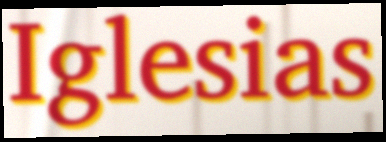
Iglesias